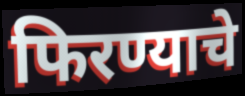
फिरण्याचे